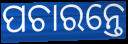
ପଚାରନ୍ତେ